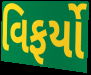
વિફર્યો